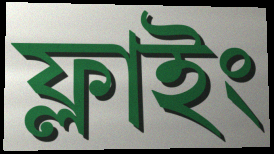
ফ্লাইং